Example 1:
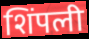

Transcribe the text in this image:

शिंपली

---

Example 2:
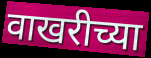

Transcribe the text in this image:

वाखरीच्या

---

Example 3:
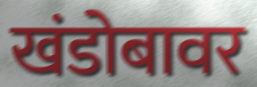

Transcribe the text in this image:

खंडोबावर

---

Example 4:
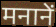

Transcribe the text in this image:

मनानें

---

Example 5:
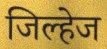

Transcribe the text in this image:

जिल्हेज